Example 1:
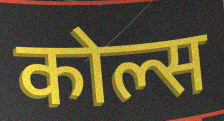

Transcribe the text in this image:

कोल्स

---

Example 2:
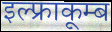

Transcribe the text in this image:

इल्फ्राकूम्ब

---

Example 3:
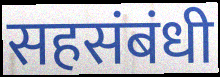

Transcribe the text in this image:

सहसंबंधी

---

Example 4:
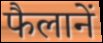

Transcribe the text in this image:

फैलानें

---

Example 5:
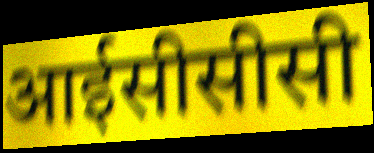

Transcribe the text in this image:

आईसीसीसी